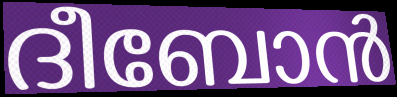
ദീബോൻ